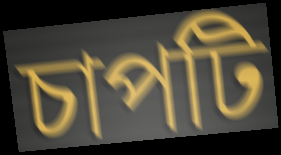
চাপটি